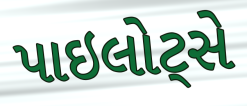
પાઇલોટ્સે